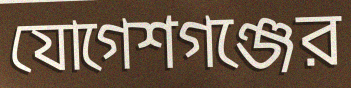
যোগেশগঞ্জের